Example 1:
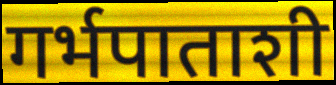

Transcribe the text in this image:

गर्भपाताशी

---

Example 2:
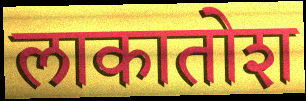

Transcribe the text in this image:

लाकातोश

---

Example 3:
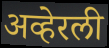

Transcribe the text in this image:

अव्हेरली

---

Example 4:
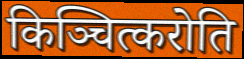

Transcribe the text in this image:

किञ्चित्करोति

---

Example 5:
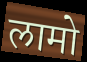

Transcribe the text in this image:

लामो